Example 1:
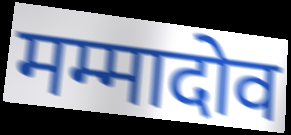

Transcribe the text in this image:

मम्मादोव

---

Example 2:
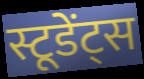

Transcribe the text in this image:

स्टूडेंट्स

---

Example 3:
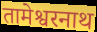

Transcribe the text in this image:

तामेश्वरनाथ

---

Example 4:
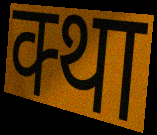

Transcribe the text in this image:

क्था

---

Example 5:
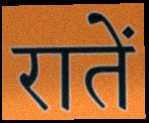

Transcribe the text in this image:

रातें